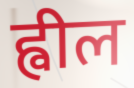
ह्वील